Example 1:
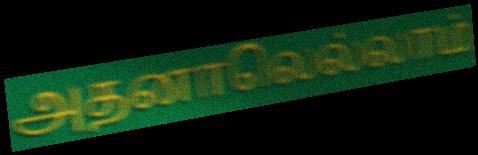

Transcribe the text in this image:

அதனாலெல்லாம்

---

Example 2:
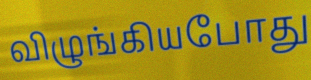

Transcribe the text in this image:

விழுங்கியபோது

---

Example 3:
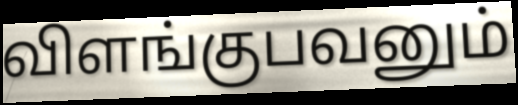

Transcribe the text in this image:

விளங்குபவனும்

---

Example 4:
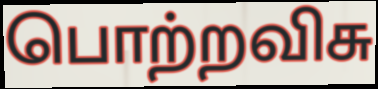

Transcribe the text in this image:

பொற்றவிசு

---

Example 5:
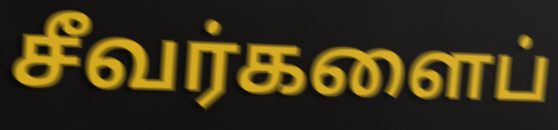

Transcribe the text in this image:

சீவர்களைப்